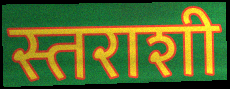
स्तराशी